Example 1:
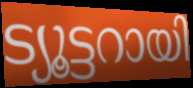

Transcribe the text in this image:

ട്യൂട്ടറായി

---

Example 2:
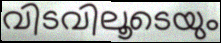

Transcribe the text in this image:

വിടവിലൂടെയും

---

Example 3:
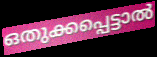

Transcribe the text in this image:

ഒതുക്കപ്പെട്ടാൽ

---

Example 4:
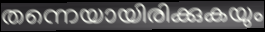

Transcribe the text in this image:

തന്നെയായിരിക്കുകയും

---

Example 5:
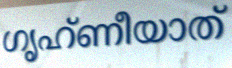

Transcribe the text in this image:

ഗൃഹ്ണീയാത്